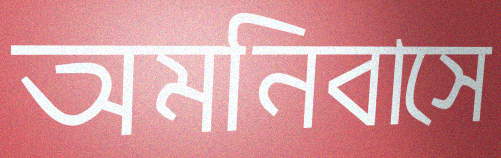
অমনিবাসে